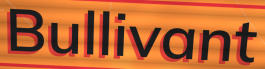
Bullivant